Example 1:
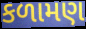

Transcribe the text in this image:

કળામણ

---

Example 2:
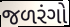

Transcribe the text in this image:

જળરંગો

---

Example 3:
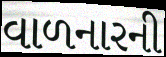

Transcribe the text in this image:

વાળનારની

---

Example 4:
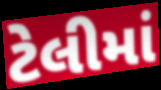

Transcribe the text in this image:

ટેલીમાં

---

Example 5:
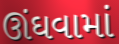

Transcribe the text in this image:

ઊંઘવામાં